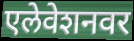
एलेवेशनवर